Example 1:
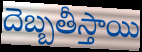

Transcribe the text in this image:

దెబ్బతీస్తాయి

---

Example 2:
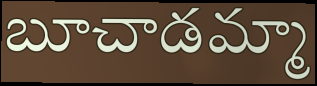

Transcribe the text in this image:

బూచాడమ్మా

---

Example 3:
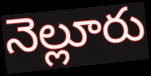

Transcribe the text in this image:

నెల్లూరు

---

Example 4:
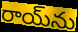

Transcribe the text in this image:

రాయ్‌ను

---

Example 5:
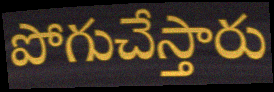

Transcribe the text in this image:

పోగుచేస్తారు